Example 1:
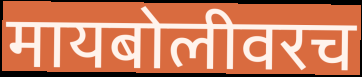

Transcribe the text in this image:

मायबोलीवरच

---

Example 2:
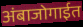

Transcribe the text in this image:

अंबाजोगाईत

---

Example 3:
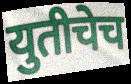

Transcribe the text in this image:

युतीचेच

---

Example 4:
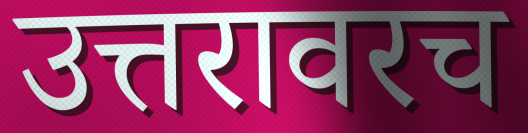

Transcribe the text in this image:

उत्तरावरच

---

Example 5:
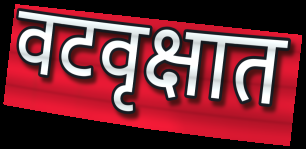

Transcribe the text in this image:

वटवृक्षात